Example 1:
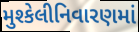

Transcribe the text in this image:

મુશ્કેલીનિવારણમાં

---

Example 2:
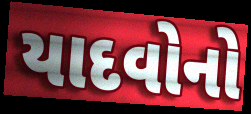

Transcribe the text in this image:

યાદવોનો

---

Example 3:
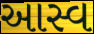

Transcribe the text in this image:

આસ્વ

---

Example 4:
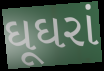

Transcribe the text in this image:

ઘૂઘરાં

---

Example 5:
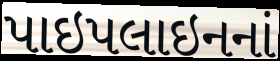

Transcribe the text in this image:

પાઇપલાઇનનાં